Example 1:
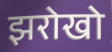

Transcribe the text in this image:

झरोखो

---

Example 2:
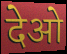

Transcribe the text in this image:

देओ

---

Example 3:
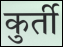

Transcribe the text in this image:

कुर्ती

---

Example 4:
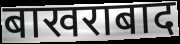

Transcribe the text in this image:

बाखराबाद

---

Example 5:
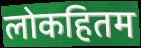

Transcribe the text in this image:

लोकहितम